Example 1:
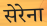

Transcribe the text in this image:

सेरेना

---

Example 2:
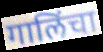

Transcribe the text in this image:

गालिंचा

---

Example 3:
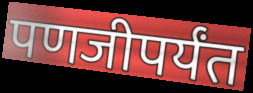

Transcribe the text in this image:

पणजीपर्यंत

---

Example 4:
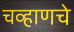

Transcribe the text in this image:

चव्हाणचे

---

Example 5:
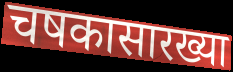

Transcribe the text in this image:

चषकासारख्या